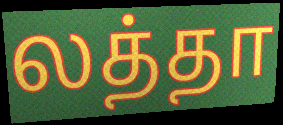
லத்தா